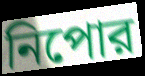
নিপোর